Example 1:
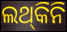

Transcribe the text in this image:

ଲଥ୍‌କିନି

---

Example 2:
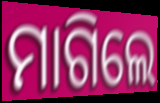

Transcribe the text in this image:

ମାଗିଲେ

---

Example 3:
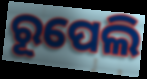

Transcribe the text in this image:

ରୂପେଲି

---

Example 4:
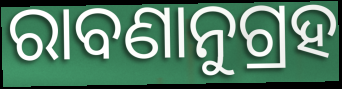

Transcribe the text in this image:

ରାବଣାନୁଗ୍ରହ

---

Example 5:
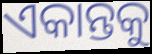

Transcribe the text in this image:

ଏକାନ୍ତକୁ